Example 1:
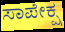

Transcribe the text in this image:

ಸಾಪೇಕ್ಷ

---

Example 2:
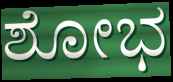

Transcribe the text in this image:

ಶೋಭ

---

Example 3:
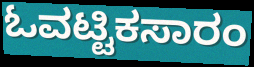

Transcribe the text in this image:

ಓವಟ್ಟಿಕಸಾರಂ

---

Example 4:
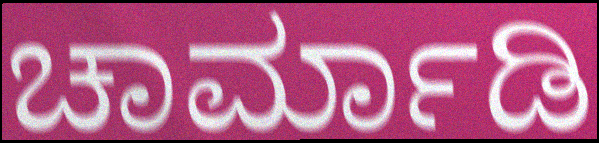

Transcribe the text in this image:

ಚಾರ್ಮಾಡಿ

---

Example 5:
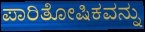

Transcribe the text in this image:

ಪಾರಿತೋಷಿಕವನ್ನು